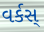
વર્કસ્